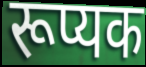
रूप्यक